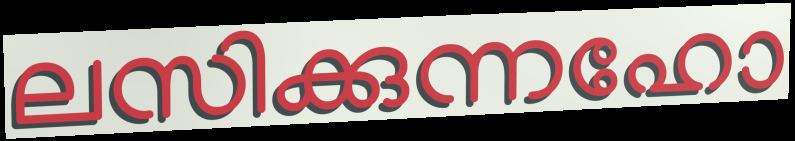
ലസിക്കുന്നഹോ